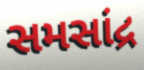
સમસાંદ્ર